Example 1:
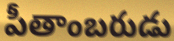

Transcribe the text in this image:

పీతాంబరుడు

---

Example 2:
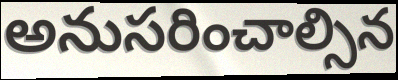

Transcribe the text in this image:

అనుసరించాల్సిన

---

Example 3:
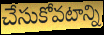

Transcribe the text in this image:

చేసుకోవటాన్ని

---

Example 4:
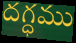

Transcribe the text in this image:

దగ్ధము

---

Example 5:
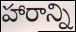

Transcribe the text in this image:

హారాన్ని